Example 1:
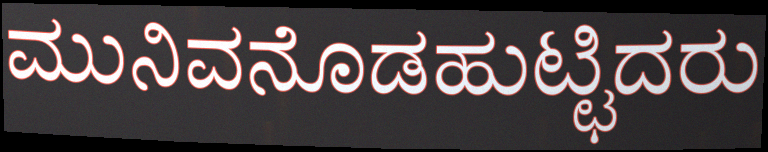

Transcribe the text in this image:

ಮುನಿವನೊಡಹುಟ್ಟಿದರು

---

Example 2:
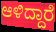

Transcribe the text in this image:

ಆಳಿದ್ದಾರೆ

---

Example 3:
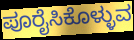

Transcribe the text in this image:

ಪೂರೈಸಿಕೊಳ್ಳುವ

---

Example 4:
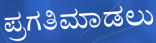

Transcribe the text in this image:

ಪ್ರಗತಿಮಾಡಲು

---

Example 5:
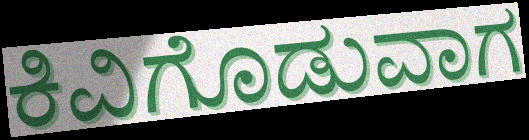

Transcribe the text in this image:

ಕಿವಿಗೊಡುವಾಗ